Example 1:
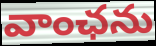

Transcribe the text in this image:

వాంఛను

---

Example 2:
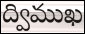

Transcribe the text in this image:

ద్విముఖ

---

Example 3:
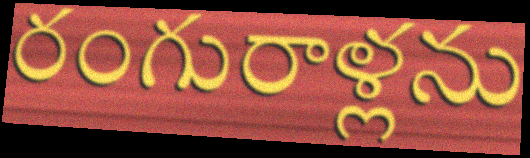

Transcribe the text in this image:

రంగురాళ్లను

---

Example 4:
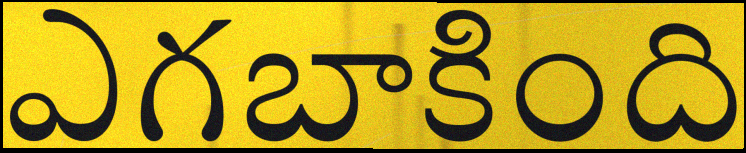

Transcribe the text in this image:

ఎగబాకింది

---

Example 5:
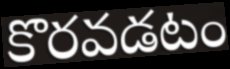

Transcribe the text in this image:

కొరవడటం